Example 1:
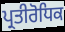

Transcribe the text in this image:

ਪ੍ਰਤੀਰੋਧਿਕ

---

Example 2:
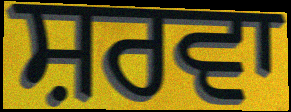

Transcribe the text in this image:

ਸ਼ਰਵਾ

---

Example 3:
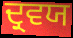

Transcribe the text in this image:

ਦ੍ਰਵਯ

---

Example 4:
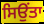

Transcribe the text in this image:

ਸਿਉਂਤਾ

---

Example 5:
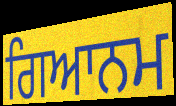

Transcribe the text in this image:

ਗਿਆਨਮ